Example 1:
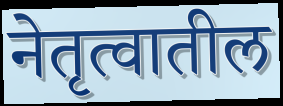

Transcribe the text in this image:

नेतृत्वातील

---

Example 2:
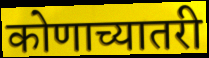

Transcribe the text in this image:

कोणाच्यातरी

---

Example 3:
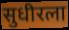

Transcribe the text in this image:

सुधीरला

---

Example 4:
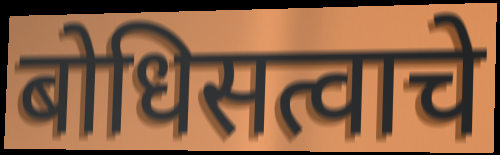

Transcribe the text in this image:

बोधिसत्वाचे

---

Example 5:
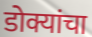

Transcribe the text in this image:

डोक्यांचा